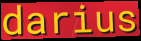
darius